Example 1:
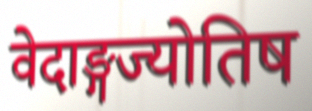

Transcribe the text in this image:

वेदाङ्गज्योतिष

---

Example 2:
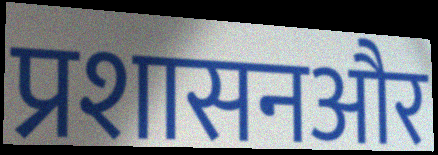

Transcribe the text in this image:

प्रशासनऔर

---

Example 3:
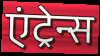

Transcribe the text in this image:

एंट्रेन्स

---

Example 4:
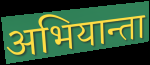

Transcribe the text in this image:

अभियान्ता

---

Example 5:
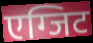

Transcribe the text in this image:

एग्जिट